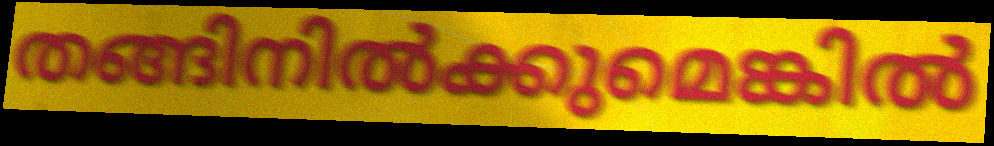
തങ്ങിനിൽക്കുമെങ്കിൽ